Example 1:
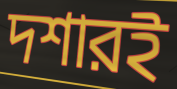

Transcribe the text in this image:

দশারই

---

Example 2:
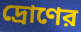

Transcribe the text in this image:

দ্রোণের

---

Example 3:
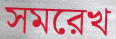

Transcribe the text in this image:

সমরেখ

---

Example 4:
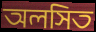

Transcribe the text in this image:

অলসিত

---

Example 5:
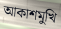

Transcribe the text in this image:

আকাশমুখি